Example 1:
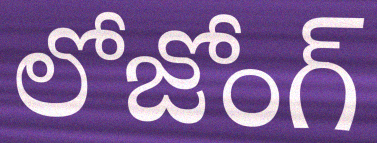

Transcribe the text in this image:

లోజోంగ్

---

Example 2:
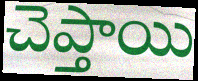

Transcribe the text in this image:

చెప్తాయి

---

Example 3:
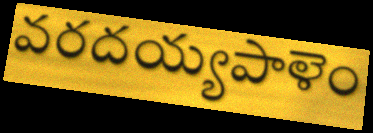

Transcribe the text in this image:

వరదయ్యపాళెం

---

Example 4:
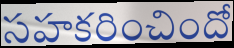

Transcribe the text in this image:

సహకరించిందో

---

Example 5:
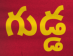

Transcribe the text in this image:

గుడ్డ